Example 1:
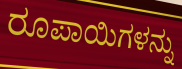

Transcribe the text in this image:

ರೂಪಾಯಿಗಳನ್ನು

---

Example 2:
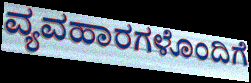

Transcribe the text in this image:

ವ್ಯವಹಾರಗಳೊಂದಿಗೆ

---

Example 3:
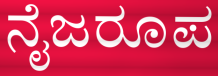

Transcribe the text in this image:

ನೈಜರೂಪ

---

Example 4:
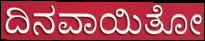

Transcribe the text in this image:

ದಿನವಾಯಿತೋ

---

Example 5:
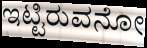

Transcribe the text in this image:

ಇಟ್ಟಿರುವನೋ